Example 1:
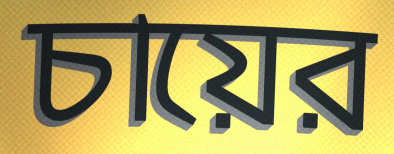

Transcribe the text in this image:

চায়ের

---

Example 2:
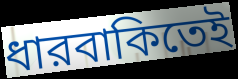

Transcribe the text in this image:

ধারবাকিতেই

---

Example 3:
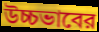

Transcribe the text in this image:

উচ্চভাবের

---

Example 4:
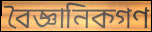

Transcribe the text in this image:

বৈজ্ঞানিকগণ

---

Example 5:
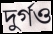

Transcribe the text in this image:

দুর্গও